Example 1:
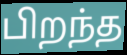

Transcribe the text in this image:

பிறந்த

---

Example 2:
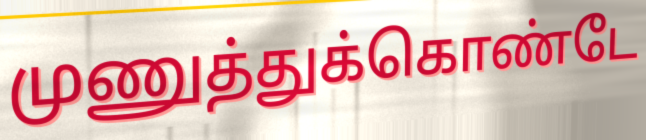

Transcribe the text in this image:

முணுத்துக்கொண்டே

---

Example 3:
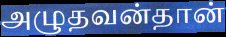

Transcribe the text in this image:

அழுதவன்தான்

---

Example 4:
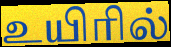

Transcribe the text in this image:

உயிரில்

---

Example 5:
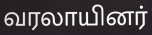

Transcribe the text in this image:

வரலாயினர்